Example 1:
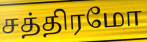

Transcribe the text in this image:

சத்திரமோ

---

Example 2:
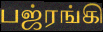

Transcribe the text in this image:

பஜ்ரங்கி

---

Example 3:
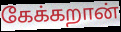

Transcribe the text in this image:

கேக்கறான்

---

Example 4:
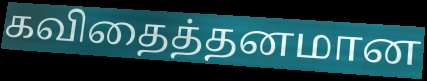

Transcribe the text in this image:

கவிதைத்தனமான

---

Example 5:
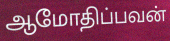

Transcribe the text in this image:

ஆமோதிப்பவன்